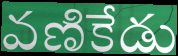
వణికేడు